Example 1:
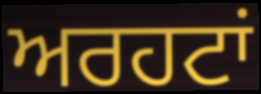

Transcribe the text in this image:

ਅਰਹਟਾਂ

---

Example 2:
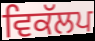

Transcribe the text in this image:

ਵਿਕੱਲਪ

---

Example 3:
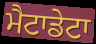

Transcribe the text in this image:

ਮੈਟਾਡੇਟਾ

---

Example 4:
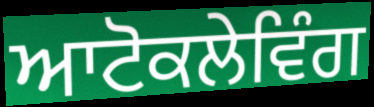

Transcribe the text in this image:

ਆਟੋਕਲੇਵਿੰਗ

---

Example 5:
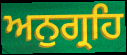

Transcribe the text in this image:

ਅਨੁਗ੍ਰਹਿ